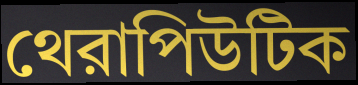
থেরাপিউটিক